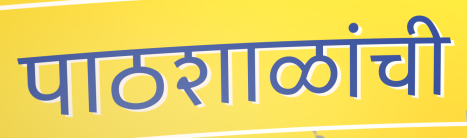
पाठशाळांची